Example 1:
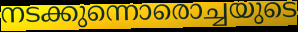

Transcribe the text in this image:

നടക്കുന്നൊരൊച്ചയുടെ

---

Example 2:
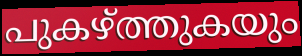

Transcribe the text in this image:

പുകഴ്ത്തുകയും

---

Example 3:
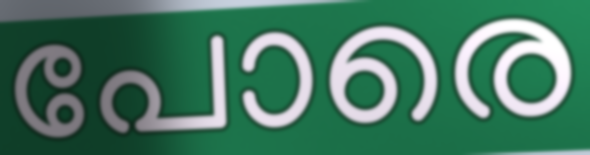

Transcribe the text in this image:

പോരെ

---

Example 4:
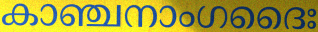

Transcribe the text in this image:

കാഞ്ചനാംഗദൈഃ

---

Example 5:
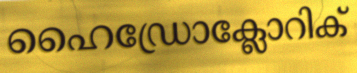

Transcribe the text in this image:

ഹൈഡ്രോക്ലോറിക്